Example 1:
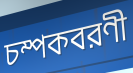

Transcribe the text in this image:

চম্পকবরণী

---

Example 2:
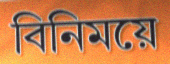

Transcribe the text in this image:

বিনিময়ে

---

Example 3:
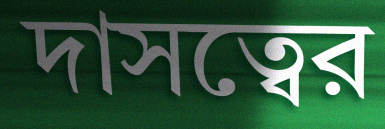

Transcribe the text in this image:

দাসত্বের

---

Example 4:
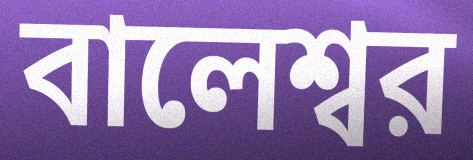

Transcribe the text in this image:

বালেশ্বর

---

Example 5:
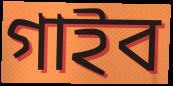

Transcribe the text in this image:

গাইব